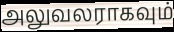
அலுவலராகவும்